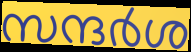
സന്ദർശ